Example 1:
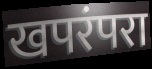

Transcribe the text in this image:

खपरंपरा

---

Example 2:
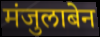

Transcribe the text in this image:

मंजुलाबेन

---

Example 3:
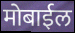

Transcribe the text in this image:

मोबाईल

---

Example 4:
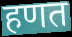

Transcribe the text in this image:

हणत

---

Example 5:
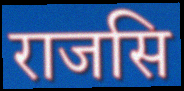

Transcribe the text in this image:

राजसि